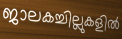
ജാലകച്ചില്ലുകളിൽ